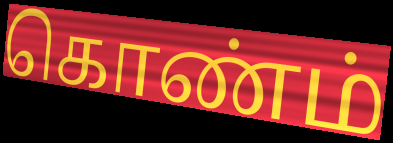
கொண்ம்